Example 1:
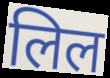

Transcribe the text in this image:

लिल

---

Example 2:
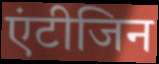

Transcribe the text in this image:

एंटीजिन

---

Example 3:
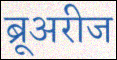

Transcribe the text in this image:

ब्रूअरीज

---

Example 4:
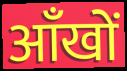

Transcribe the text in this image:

आँखों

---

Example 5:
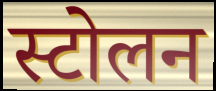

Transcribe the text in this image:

स्टोलन